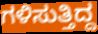
ಗಳಿಸುತ್ತಿದ್ದ